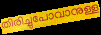
തിരിച്ചുപോവാനുള്ള